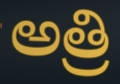
అత్రి